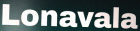
Lonavala